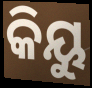
କିୟୁ